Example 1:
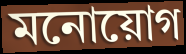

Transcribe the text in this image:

মনোয়োগ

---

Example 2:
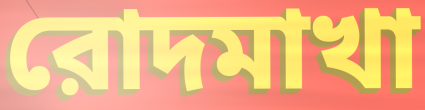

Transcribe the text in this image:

রোদমাখা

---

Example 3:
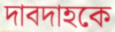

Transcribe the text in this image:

দাবদাহকে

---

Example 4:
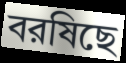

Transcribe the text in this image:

বরষিছে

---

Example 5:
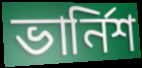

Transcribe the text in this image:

ভার্নিশ